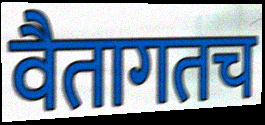
वैतागतच